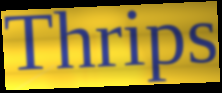
Thrips